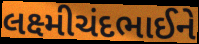
લક્ષ્મીચંદભાઈને